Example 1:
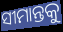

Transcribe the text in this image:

ସୀମାନ୍ତକୁ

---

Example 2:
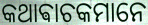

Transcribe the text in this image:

କଥାଵାଚକମାନେ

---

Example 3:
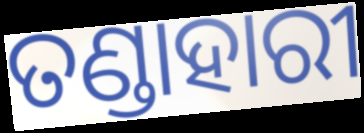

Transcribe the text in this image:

ତଣ୍ଡାହାରୀ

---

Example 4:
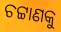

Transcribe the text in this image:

ଚଟ୍ଟାଣକୁ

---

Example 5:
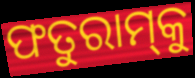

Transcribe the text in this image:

ଫତୁରାମ୍‌କୁ